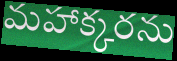
మహాక్కరను